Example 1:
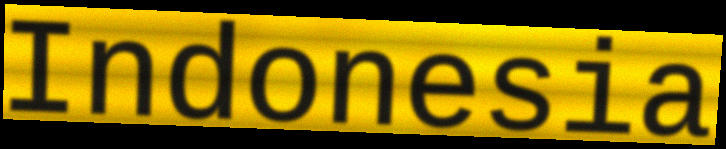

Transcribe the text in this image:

Indonesia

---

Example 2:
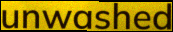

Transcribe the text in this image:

unwashed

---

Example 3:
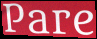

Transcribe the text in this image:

Pare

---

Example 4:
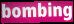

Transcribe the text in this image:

bombing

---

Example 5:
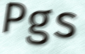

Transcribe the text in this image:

Pgs